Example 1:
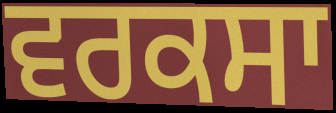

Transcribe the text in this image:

ਵਰਕਸਾ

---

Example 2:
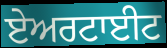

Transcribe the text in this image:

ਏਅਰਟਾਈਟ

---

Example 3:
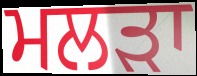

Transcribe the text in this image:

ਮਲੜਾ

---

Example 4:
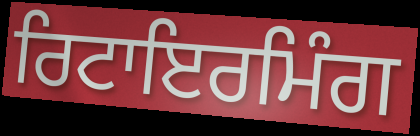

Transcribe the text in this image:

ਰਿਟਾਇਰਮਿੰਗ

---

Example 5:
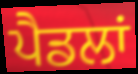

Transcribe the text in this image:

ਪੈਡਲਾਂ